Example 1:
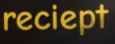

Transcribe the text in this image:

reciept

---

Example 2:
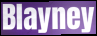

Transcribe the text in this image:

Blayney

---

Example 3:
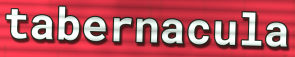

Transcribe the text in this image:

tabernacula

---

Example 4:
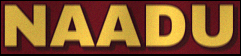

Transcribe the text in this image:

NAADU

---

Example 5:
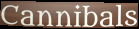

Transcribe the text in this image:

Cannibals